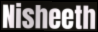
Nisheeth